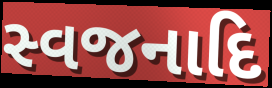
સ્વજનાદિ